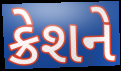
ક્રેશને